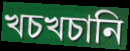
খচখচানি